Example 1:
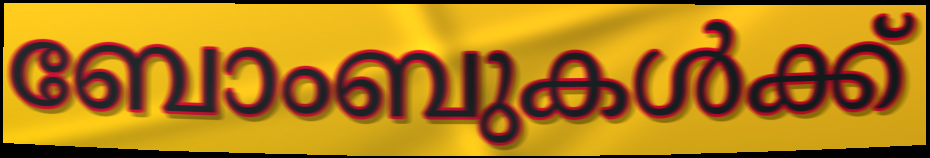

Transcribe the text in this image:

ബോംബുകൾക്ക്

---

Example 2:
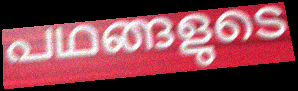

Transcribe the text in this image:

പഥങ്ങളുടെ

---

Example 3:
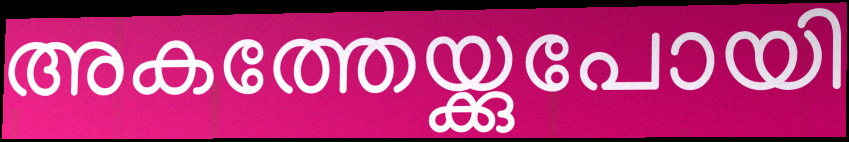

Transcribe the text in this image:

അകത്തേയ്ക്കുപോയി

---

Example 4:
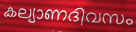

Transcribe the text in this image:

കല്യാണദിവസം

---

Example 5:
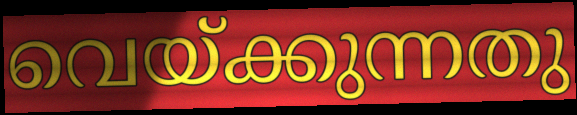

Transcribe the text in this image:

വെയ്ക്കുന്നതു